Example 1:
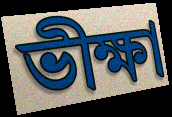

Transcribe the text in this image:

ভীক্ষা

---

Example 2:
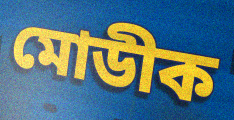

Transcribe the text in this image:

মোডীক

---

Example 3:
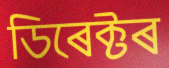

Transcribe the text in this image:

ডিৰেক্টৰ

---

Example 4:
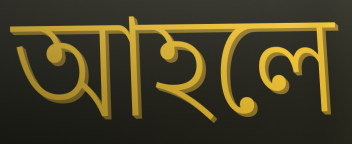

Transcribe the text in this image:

আহলে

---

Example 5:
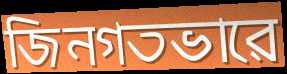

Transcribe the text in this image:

জিনগতভাৱে